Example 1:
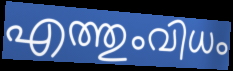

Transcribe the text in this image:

എത്തുംവിധം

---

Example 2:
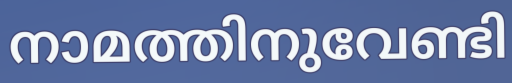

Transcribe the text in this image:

നാമത്തിനുവേണ്ടി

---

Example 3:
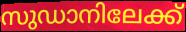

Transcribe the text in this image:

സുഡാനിലേക്ക്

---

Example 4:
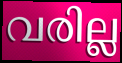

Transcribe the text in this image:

വരില്ല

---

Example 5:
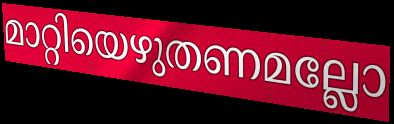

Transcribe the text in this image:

മാറ്റിയെഴുതണമല്ലോ